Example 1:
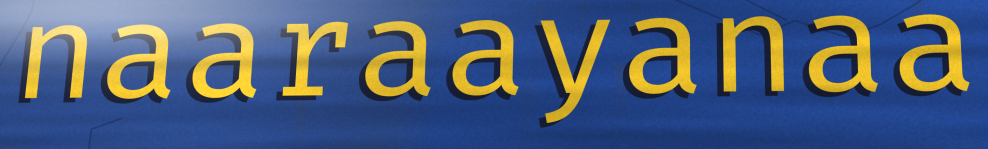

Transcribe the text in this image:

naaraayanaa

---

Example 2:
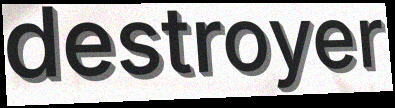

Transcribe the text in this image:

destroyer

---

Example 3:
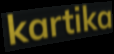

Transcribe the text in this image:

kartika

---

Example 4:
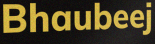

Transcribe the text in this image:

Bhaubeej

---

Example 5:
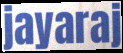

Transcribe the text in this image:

jayaraj